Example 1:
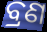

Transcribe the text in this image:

ବ୍ରଣ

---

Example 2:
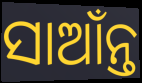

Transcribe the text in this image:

ସାଆଁନ୍ତ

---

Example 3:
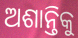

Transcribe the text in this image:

ଅଶାନ୍ତିକୁ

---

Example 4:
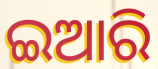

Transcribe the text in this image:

ଇଆରି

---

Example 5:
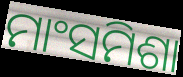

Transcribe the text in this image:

ମାଂସମିଶା